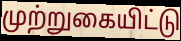
முற்றுகையிட்டு